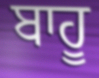
ਬਾਹੂ